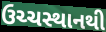
ઉચ્ચસ્થાનથી